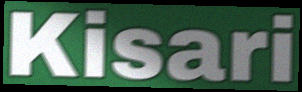
Kisari